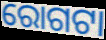
ରୋଗଟା